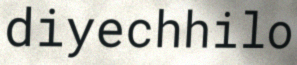
diyechhilo